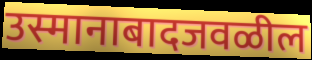
उस्मानाबादजवळील